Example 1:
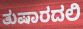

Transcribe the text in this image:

ತುಷಾರದಲಿ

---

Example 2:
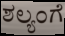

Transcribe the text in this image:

ಶಲ್ಯಂಗೆ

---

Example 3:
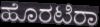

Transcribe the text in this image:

ಹೊರಟಿರಾ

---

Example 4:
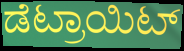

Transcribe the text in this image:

ಡೆಟ್ರಾಯಿಟ್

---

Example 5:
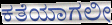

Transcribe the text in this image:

ಕತೆಯಾಗಲೀ